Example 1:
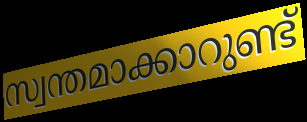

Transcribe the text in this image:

സ്വന്തമാക്കാറുണ്ട്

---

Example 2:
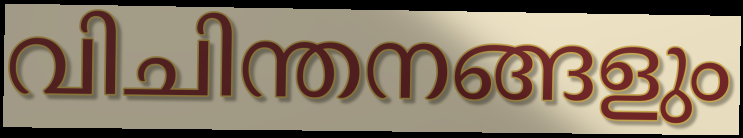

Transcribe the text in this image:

വിചിന്തനങ്ങളും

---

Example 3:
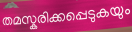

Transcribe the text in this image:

തമസ്കരിക്കപ്പെടുകയും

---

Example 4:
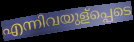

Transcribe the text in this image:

എന്നിവയുള്പ്പെടെ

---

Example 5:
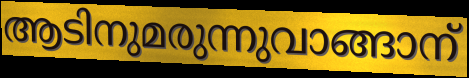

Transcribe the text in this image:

ആടിനുമരുന്നുവാങ്ങാന്